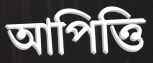
আপিত্তি